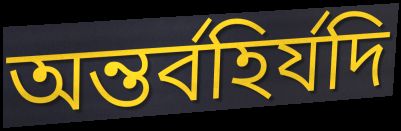
অন্তর্বহির্যদি